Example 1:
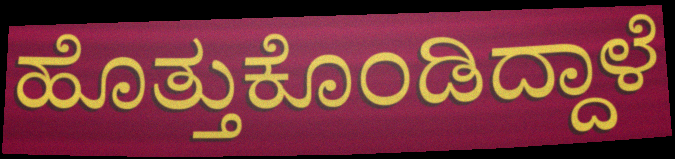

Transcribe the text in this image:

ಹೊತ್ತುಕೊಂಡಿದ್ದಾಳೆ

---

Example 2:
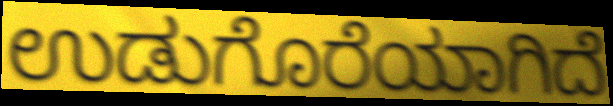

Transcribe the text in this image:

ಉಡುಗೊರೆಯಾಗಿದೆ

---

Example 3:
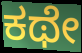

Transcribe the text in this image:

ಕಥೇ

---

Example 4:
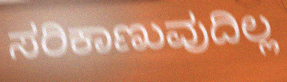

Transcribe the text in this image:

ಸರಿಕಾಣುವುದಿಲ್ಲ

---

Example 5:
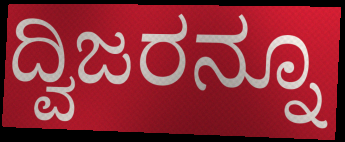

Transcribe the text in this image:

ದ್ವಿಜರನ್ನೂ